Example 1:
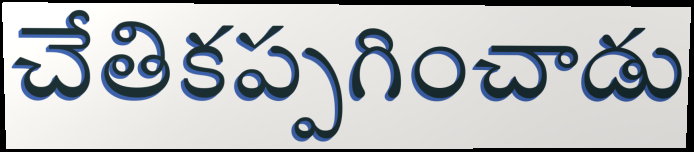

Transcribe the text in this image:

చేతికప్పగించాడు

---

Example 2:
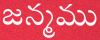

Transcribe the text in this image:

జన్మము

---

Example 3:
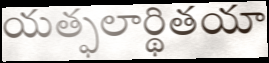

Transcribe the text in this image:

యత్ఫలార్థితయా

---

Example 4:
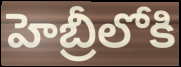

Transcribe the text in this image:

హెబ్రీలోకి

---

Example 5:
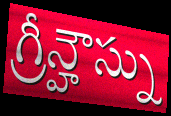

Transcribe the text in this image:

గ్రీన్హౌస్ను